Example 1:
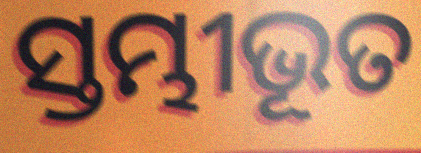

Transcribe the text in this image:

ସ୍ତମ୍ଭୀଭୂତ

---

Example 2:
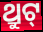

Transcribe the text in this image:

ଥ୍ରୁଟ୍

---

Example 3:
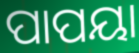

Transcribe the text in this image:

ପାପୟା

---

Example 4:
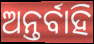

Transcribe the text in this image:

ଅନ୍ତର୍ବାହି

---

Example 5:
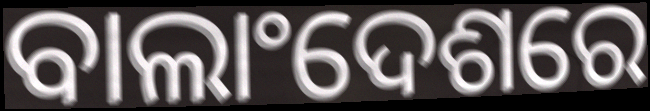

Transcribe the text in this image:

ବାଲାଂଦେଶରେ